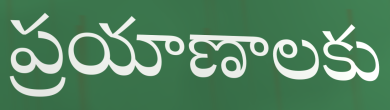
ప్రయాణాలకు